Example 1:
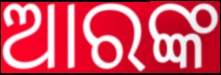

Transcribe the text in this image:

ଆରଙ୍କ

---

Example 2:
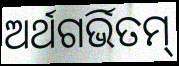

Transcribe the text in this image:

ଅର୍ଥଗର୍ଭିତମ୍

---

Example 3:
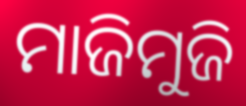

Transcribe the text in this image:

ମାଜିମୁଜି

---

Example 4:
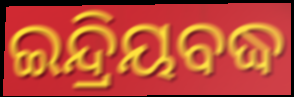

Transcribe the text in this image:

ଇନ୍ଦ୍ରିୟବଦ୍ଧ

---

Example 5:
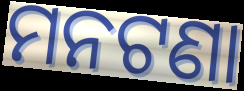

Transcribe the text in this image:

ମନଟଣା